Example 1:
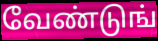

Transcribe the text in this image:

வேண்டுங்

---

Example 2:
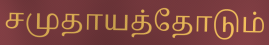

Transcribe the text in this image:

சமுதாயத்தோடும்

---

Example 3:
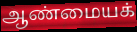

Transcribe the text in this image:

ஆண்மையக்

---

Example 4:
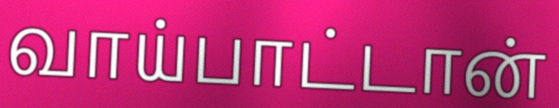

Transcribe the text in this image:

வாய்பாட்டான்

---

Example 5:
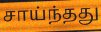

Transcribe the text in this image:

சாய்ந்தது